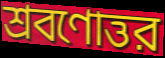
শ্রবণোত্তর